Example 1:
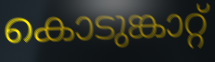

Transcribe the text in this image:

കൊടുങ്കാറ്റ്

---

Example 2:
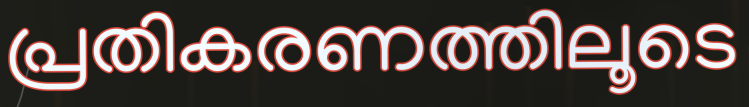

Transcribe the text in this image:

പ്രതികരണത്തിലൂടെ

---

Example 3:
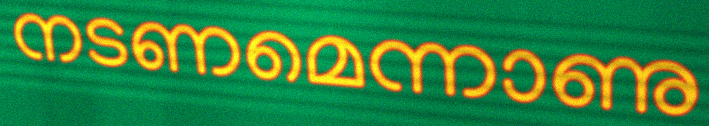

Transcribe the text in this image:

നടണമെന്നാണു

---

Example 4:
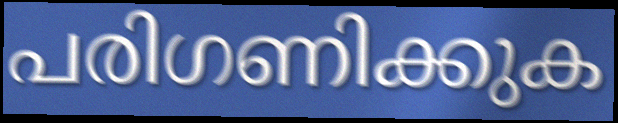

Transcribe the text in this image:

പരിഗണിക്കുക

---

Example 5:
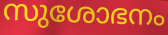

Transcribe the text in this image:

സുശോഭനം